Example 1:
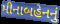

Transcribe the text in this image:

મીનાબહેનનું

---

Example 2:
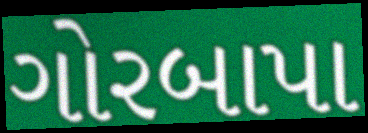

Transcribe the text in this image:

ગોરબાપા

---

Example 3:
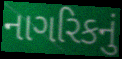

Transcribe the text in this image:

નાગરિકનું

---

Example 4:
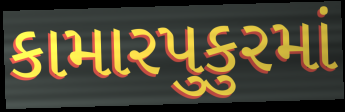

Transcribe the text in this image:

કામારપુકુરમાં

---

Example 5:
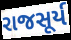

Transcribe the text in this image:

રાજસૂર્ય